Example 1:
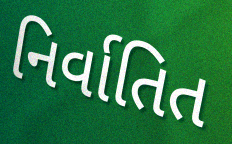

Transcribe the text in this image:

નિર્વાતિત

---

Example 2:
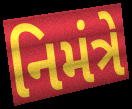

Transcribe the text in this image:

નિમંત્રે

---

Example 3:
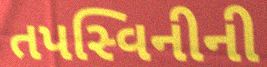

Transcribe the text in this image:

તપસ્વિનીની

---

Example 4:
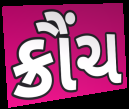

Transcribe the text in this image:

ક્રૌંચ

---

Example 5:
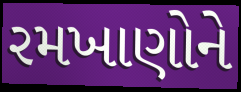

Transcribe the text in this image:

રમખાણોને